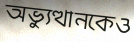
অভ্যুত্থানকেও